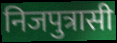
निजपुत्रासी